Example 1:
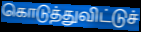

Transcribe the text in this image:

கொடுத்துவிட்டுச்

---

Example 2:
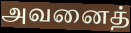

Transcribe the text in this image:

அவனைத்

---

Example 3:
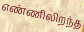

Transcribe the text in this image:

எண்ணிலிறந்த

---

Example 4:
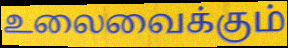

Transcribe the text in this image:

உலைவைக்கும்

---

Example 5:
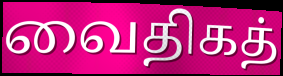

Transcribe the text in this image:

வைதிகத்